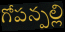
గోపన్పల్లి